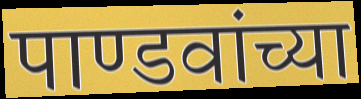
पाण्डवांच्या